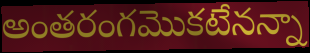
అంతరంగమొకటేనన్నా